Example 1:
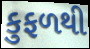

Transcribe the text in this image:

કુફળથી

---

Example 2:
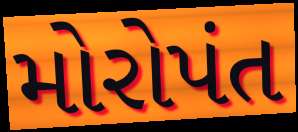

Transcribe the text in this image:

મોરોપંત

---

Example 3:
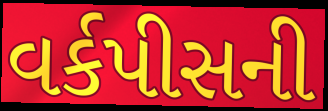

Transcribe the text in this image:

વર્કપીસની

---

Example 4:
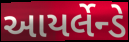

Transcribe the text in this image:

આયર્લેન્ડે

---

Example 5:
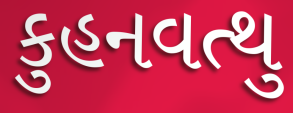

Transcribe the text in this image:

કુહનવત્થુ